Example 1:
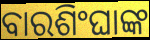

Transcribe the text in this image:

ବାରଶିଂଘାଙ୍କ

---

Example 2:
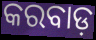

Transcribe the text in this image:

କରବାଡ଼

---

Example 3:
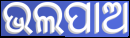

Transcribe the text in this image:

ଭଲପାଅ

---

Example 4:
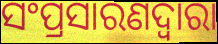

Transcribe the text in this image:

ସଂପ୍ରସାରଣଦ୍ଵାରା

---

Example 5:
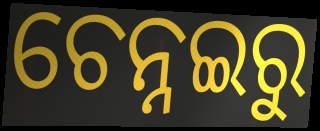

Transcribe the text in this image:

ଚେନ୍ନଇରୁ